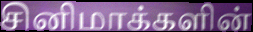
சினிமாக்களின்